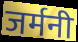
जर्मनी